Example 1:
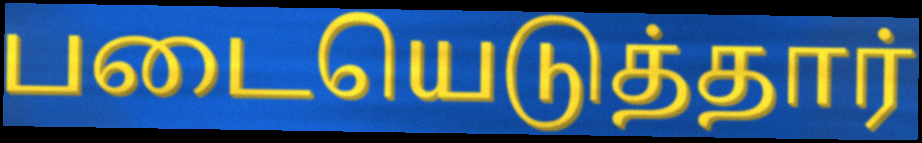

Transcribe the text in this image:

படையெடுத்தார்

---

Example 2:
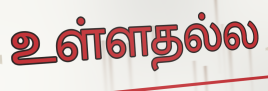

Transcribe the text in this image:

உள்ளதல்ல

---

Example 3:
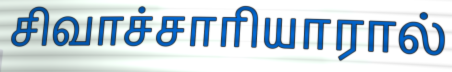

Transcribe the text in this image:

சிவாச்சாரியாரால்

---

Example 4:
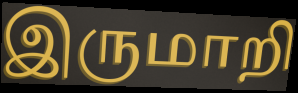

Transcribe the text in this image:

இருமாறி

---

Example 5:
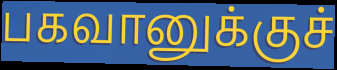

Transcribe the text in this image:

பகவானுக்குச்